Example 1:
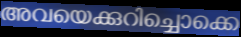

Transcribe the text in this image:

അവയെക്കുറിച്ചൊക്കെ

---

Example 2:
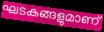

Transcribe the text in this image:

ഘടകങ്ങളുമാണ്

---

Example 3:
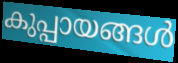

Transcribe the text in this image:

കുപ്പായങ്ങൾ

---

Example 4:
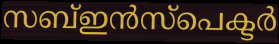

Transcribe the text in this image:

സബ്ഇൻസ്പെക്ടർ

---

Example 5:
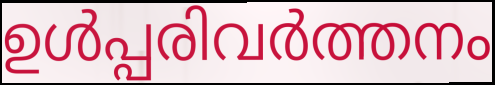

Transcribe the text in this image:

ഉൾപ്പരിവർത്തനം